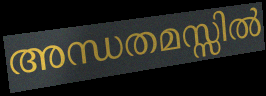
അന്ധതമസ്സിൽ